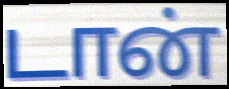
டான்